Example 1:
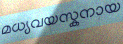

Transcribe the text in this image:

മധ്യവയസ്കനായ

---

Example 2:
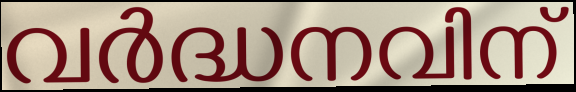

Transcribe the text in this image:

വർദ്ധനവിന്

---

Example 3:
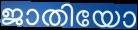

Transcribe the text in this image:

ജാതിയോ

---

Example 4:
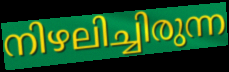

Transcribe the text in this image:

നിഴലിച്ചിരുന്ന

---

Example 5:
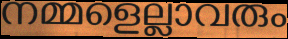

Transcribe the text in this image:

നമ്മളെല്ലാവരും